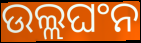
ଉଲ୍ଲଘଂନ